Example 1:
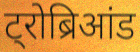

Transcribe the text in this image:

ट्रोब्रिआंड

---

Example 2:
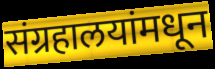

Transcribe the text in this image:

संग्रहालयांमधून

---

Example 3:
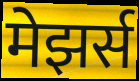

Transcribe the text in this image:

मेझर्स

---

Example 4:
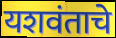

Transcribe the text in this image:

यशवंताचे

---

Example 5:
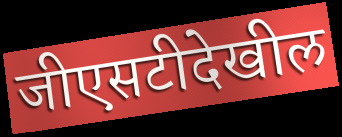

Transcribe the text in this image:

जीएसटीदेखील